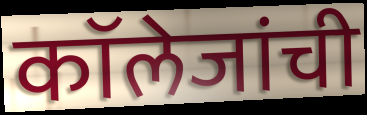
कॉलेजांची